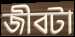
জীবটা